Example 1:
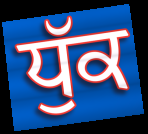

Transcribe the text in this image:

ਧੁੱਕ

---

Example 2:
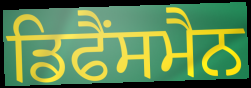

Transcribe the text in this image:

ਡਿਫੈਂਸਮੈਨ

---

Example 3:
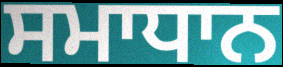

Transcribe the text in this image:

ਸਮਾਧਾਨ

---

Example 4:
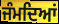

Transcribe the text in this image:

ਜੰਮਦਿਆਂ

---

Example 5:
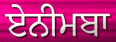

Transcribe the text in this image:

ਏਨੀਮਬਾ